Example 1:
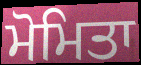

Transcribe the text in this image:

ਮੋਮਿਤਾ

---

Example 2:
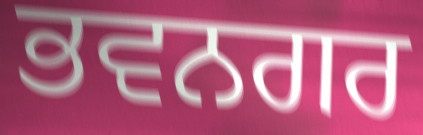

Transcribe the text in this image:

ਭਵਨਗਰ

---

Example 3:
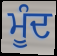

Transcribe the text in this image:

ਮੂੰਦ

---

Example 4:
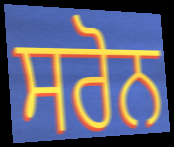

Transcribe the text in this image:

ਸਰੋਨ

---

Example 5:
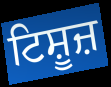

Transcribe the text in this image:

ਟਿਸ਼ੂਜ਼